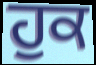
ਹੁਕ